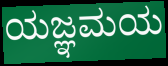
ಯಜ್ಞಮಯ